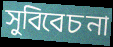
সুবিবেচনা